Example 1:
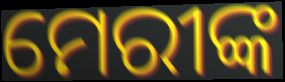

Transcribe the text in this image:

ମେରୀଙ୍କ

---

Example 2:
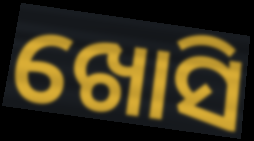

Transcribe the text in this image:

ଖୋସି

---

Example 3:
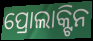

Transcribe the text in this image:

ପ୍ରୋଲାକ୍ଟିନ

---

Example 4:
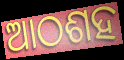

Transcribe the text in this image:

ଆଠଶହ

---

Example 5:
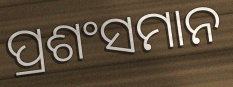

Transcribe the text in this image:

ପ୍ରଶଂସମାନ